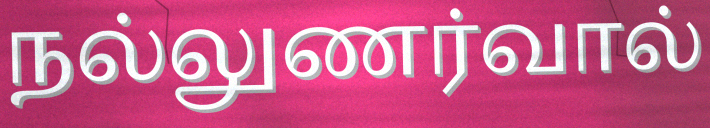
நல்லுணர்வால்